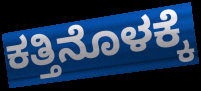
ಕತ್ತಿನೊಳಕ್ಕೆ